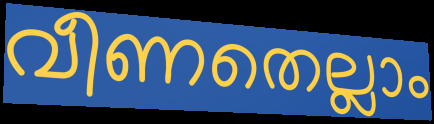
വീണതെല്ലാം